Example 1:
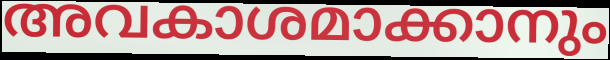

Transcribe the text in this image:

അവകാശമാക്കാനും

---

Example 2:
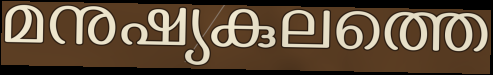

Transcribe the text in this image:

മനുഷ്യകുലത്തെ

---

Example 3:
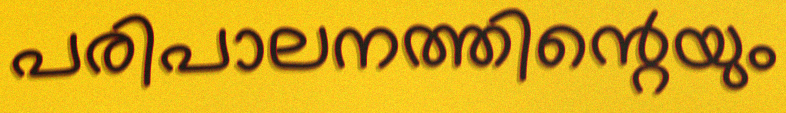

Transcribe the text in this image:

പരിപാലനത്തിന്റെയും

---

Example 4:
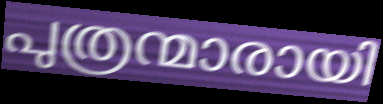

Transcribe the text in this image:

പുത്രന്മാരായി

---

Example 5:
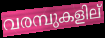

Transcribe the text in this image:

വരമ്പുകളില്